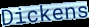
Dickens